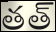
తత్